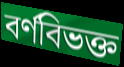
বর্ণবিভক্ত